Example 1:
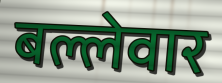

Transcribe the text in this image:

बल्लेवार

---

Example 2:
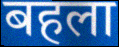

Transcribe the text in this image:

बहला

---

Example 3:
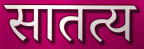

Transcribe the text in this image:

सातत्य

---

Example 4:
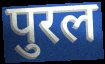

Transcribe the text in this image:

पुरल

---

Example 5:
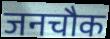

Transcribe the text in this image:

जनचौक